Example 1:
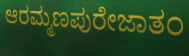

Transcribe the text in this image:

ಆರಮ್ಮಣಪುರೇಜಾತಂ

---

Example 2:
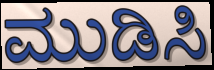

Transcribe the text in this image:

ಮುಡಿಸಿ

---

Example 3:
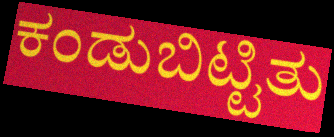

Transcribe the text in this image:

ಕಂಡುಬಿಟ್ಟಿತು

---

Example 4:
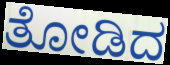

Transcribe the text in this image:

ತೋಡಿದ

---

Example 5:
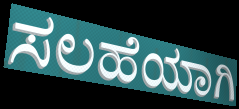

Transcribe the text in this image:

ಸಲಹೆಯಾಗಿ